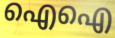
ഐഐ